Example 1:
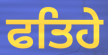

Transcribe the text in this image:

ਫਤਿਹੇ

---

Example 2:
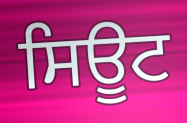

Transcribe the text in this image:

ਸਿਊਟ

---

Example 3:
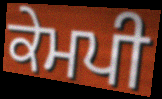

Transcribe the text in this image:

ਕੇਮਪੀ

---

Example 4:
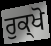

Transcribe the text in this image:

ਰੁਕ੍ਖੋ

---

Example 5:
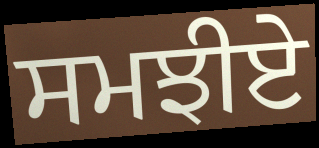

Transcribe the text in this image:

ਸਮਝੀਏ